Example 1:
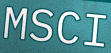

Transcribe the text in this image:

MSCI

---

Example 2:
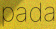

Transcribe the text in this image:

pada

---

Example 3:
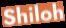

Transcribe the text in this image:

Shiloh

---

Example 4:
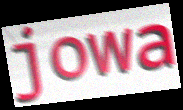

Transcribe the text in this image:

jowa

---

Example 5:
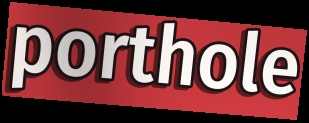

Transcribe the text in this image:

porthole